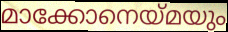
മാക്കോനെയ്മയും